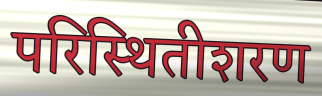
परिस्थितीशरण